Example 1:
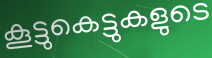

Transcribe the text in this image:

കൂട്ടുകെട്ടുകളുടെ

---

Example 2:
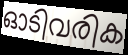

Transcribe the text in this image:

ഓടിവരിക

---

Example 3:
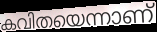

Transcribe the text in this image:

കവിതയെന്നാണ്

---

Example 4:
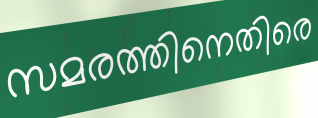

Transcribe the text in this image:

സമരത്തിനെതിരെ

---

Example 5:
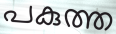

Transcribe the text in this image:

പകുത്ത